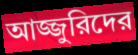
আজ্জুরিদের